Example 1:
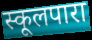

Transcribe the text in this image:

स्कूलपारा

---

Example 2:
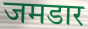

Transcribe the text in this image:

जमडार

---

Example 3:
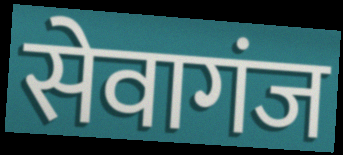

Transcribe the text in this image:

सेवागंज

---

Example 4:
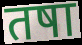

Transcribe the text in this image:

तषा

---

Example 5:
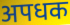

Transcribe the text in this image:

अपधक